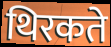
थिरकते